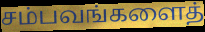
சம்பவங்களைத்